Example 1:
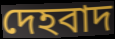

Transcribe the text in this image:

দেহবাদ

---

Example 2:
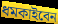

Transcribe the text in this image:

ধমকাইবেন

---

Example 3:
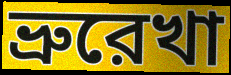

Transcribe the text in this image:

ভ্রুরেখা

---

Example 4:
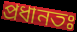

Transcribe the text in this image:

প্রধানতঃ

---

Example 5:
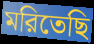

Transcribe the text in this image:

মরিতেছি